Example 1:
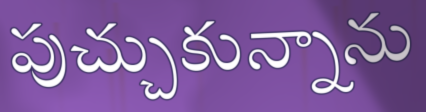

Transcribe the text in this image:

పుచ్చుకున్నాను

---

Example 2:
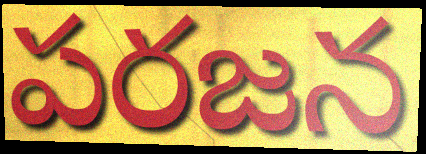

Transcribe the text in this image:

పరజన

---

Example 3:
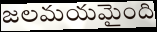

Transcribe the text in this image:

జలమయమైంది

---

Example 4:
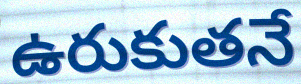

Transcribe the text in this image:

ఉరుకుతనే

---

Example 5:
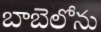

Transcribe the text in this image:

బాబెలోను